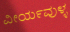
ವೀರ್ಯವುಳ್ಳ